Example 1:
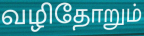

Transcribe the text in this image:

வழிதோறும்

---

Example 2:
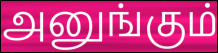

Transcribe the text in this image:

அனுங்கும்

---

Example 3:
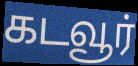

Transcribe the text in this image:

கடவூர்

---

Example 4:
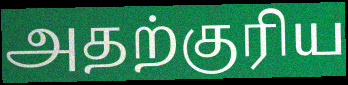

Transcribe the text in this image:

அதற்குரிய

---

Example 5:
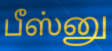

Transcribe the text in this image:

பீஸ்னு